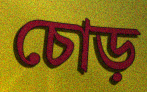
চোড়